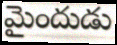
మైందుడు